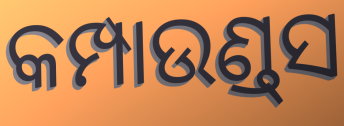
କମ୍ପାଉଣ୍ଡ୍‌ସ